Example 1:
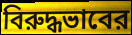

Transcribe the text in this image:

বিরুদ্ধভাবের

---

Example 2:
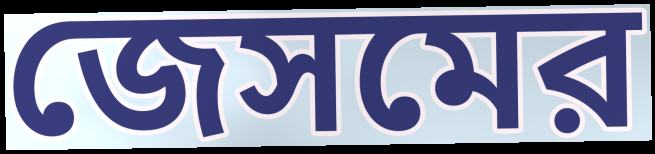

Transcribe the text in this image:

জেসমের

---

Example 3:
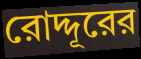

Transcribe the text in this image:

রোদ্দূরের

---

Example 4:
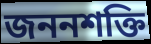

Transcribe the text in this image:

জননশক্তি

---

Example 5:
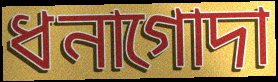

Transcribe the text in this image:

ধনাগোদা